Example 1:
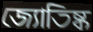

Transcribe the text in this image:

জ্যোতিষ্ক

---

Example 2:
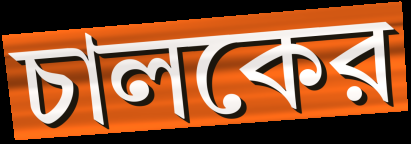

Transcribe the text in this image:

চালকের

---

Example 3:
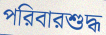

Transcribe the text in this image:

পরিবারশুদ্ধ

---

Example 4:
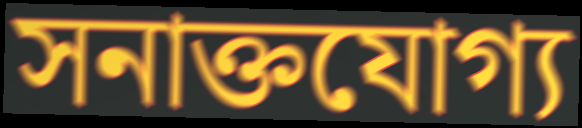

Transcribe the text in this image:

সনাক্তযোগ্য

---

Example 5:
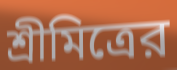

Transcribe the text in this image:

শ্রীমিত্রের